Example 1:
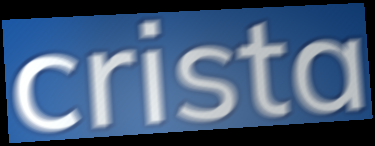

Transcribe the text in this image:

crista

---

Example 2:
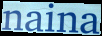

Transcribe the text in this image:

naina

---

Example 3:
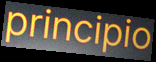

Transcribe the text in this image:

principio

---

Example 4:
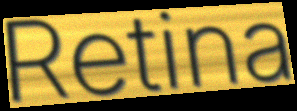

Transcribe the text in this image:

Retina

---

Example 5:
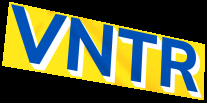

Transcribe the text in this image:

VNTR